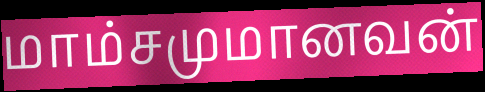
மாம்சமுமானவன்